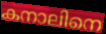
കനാലിനെ